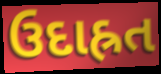
ઉદાહ્રત